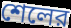
শেলের